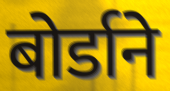
बोर्डाने